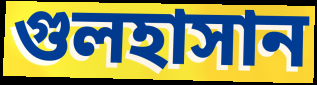
গুলহাসান